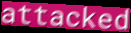
attacked